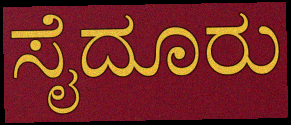
ಸೈದೂರು